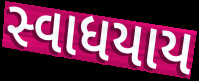
સ્વાધયાય